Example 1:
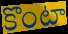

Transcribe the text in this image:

కొంటా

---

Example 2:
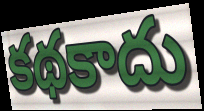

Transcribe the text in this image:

కథకాదు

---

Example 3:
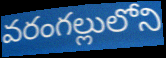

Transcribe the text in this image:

వరంగల్లులోని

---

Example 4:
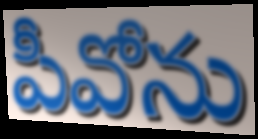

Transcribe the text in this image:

పీవోను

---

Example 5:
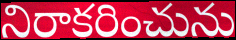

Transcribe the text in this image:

నిరాకరించును